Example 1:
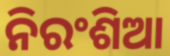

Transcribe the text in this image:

ନିରଂଶିଆ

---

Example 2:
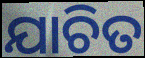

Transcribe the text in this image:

ଯାଚିତ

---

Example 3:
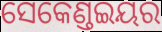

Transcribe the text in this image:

ସେକେଣ୍ଡଇୟର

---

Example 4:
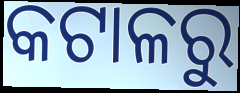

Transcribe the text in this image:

କଟାଳରୁ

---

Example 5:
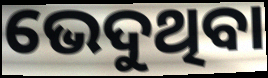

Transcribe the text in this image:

ଭେଦୁଥିବା